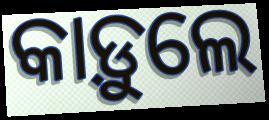
କାଡ଼ୁଲେ